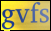
gvfs